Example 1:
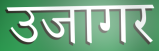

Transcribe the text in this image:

उजागर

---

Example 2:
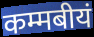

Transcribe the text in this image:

कम्मबीयं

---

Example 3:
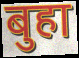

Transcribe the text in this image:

बुहा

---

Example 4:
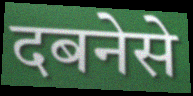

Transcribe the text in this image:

दबनेसे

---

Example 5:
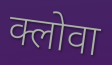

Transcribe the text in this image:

क्लोवा